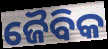
ଜୈବିକ